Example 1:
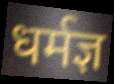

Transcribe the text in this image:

धर्मज्ञ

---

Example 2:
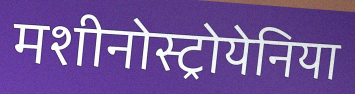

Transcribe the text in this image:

मशीनोस्ट्रोयेनिया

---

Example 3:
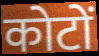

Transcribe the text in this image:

कोटों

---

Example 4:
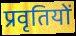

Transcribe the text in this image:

प्रवृतियों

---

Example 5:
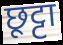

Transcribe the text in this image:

छूट्टा